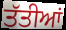
ਤੱਤੀਆਂ